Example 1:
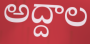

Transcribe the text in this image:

అద్దాల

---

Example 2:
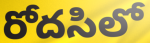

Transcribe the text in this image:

రోదసిలో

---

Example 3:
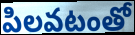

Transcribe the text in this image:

పిలవటంతో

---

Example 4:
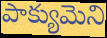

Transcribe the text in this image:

పాక్యుమెని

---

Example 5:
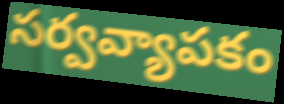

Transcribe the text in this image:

సర్వవ్యాపకం